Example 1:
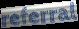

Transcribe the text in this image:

referral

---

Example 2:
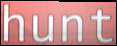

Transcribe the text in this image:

hunt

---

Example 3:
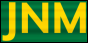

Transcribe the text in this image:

JNM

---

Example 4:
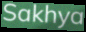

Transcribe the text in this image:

Sakhya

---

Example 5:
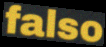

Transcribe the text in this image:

falso